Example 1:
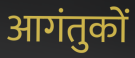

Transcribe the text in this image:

आगंतुकों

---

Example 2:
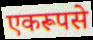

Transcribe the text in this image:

एकरूपसे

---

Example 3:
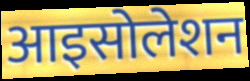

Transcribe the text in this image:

आइसोलेशन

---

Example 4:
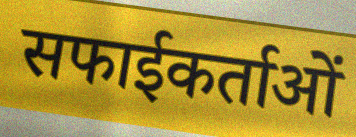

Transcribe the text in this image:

सफाईकर्ताओं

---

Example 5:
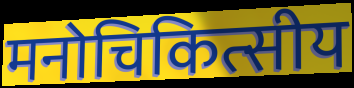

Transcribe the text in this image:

मनोचिकित्सीय